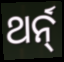
ଥର୍ନ୍